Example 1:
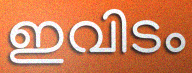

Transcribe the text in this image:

ഇവിടം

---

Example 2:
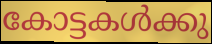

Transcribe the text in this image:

കോട്ടകൾക്കു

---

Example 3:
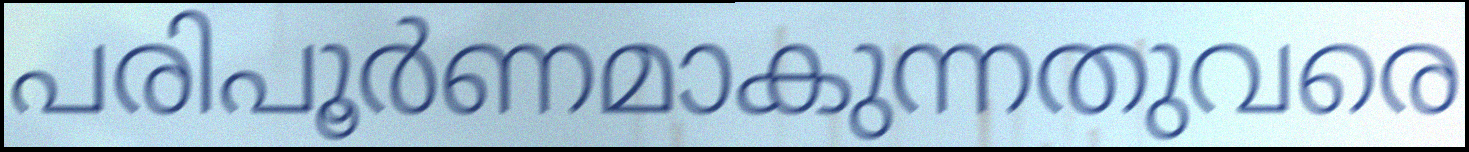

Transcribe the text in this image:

പരിപൂർണമാകുന്നതുവരെ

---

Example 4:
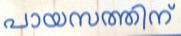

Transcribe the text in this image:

പായസത്തിന്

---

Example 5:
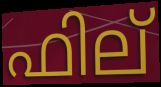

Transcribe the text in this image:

ഫില്